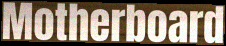
Motherboard